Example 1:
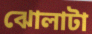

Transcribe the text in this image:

ঝোলাটা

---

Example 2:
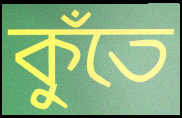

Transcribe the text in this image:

কুঁতে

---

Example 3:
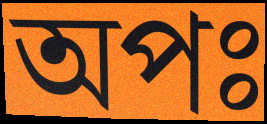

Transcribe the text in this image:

অপঃ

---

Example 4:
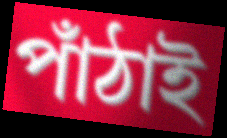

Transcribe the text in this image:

পাঁঠাই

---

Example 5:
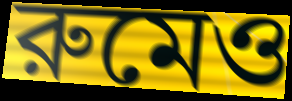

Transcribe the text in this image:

রুমেও